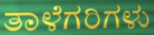
ತಾಳೆಗರಿಗಳು